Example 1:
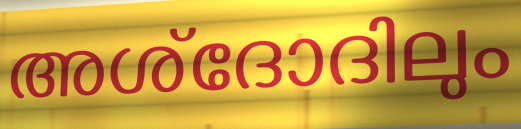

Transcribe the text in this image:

അശ്ദോദിലും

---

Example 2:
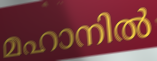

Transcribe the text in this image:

മഹാനിൽ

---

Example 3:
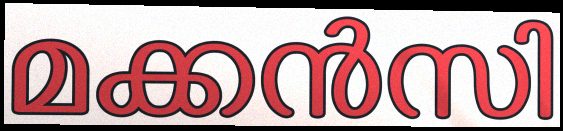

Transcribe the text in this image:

മക്കൻസി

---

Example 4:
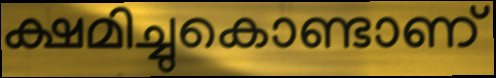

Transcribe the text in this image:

ക്ഷമിച്ചുകൊണ്ടാണ്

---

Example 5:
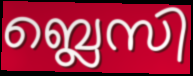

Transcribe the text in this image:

ബ്ലെസി